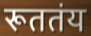
रूततंय